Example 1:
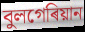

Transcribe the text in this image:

বুলগেৰিয়ান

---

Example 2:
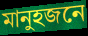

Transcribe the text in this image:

মানুহজনে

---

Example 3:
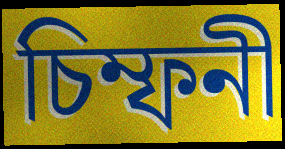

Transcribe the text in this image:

চিম্ফনী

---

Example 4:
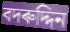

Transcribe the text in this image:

বদৰুদ্দিন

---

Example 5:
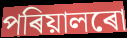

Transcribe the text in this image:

পৰিয়ালৰো